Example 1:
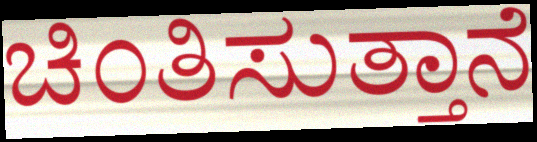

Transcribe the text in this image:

ಚಿಂತಿಸುತ್ತಾನೆ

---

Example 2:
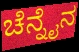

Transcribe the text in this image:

ಚೆನ್ನೈನ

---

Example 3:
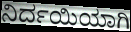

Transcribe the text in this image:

ನಿರ್ದಯಿಯಾಗಿ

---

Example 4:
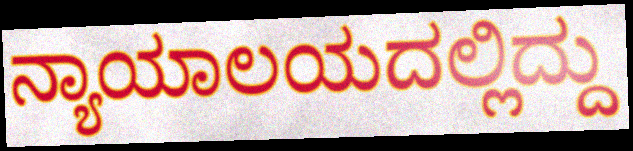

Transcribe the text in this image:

ನ್ಯಾಯಾಲಯದಲ್ಲಿದ್ದು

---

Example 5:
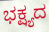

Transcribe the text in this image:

ಭಕ್ಷ್ಯದ